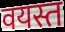
वयस्त